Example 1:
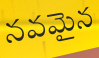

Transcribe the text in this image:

నవమైన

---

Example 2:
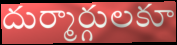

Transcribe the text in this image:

దుర్మార్గులకూ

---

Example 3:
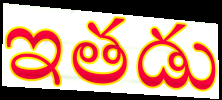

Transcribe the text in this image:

ఇతడు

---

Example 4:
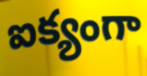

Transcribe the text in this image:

ఐక్యంగా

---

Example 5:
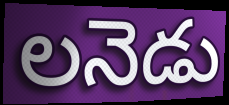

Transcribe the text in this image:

లనెడు